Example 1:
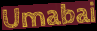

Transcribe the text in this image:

Umabai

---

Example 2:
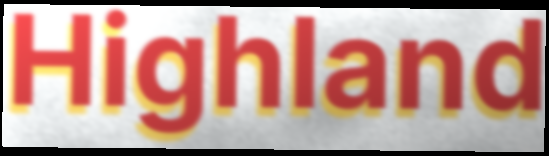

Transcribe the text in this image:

Highland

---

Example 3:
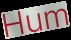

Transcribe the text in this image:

Hum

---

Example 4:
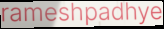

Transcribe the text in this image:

rameshpadhye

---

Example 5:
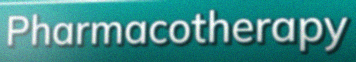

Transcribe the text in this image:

Pharmacotherapy